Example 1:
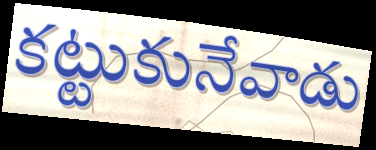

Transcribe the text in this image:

కట్టుకునేవాడు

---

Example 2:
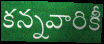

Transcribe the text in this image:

కన్నవారికీ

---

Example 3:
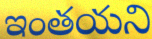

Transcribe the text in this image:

ఇంతయని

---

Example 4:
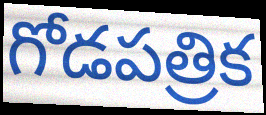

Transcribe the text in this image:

గోడపత్రిక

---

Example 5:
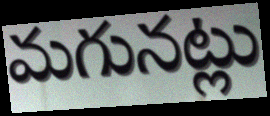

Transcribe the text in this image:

మగునట్లు